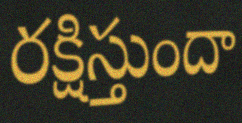
రక్షిస్తుందా